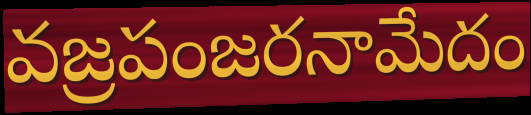
వజ్రపంజరనామేదం